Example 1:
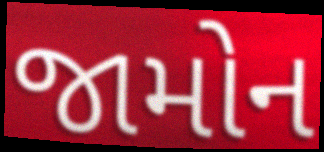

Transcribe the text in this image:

જામોન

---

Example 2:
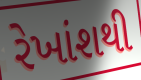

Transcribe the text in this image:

રેખાંશથી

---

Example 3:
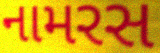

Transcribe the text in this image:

નામરસ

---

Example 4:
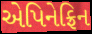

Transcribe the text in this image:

એપિનેફ્રિન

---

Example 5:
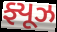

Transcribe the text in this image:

ફ્યૂઝ